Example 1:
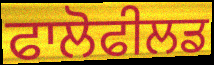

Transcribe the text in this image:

ਫਾਲੋਫੀਲਡ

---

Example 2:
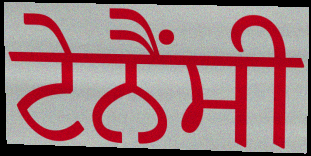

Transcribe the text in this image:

ਟੇਨੈਂਸੀ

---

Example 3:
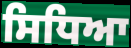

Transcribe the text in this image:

ਸਿਧਿਆ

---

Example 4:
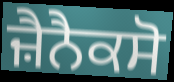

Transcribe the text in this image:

ਜ਼ੈਨੈਕਸੋ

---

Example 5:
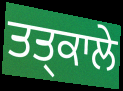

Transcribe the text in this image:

ਤਤ੍ਕਾਲੇ